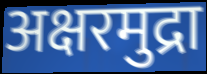
अक्षरमुद्रा